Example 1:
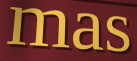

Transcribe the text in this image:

mas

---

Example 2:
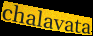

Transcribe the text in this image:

chalavata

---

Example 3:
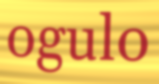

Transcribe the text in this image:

ogulo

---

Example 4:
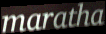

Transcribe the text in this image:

maratha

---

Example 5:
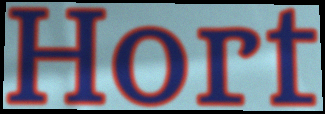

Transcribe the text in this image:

Hort